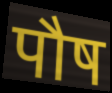
पौष